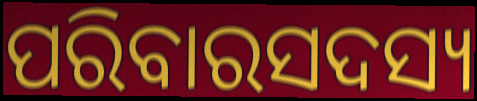
ପରିବାରସଦସ୍ୟ